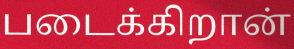
படைக்கிறான்